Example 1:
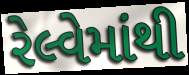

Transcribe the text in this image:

રેલ્વેમાંથી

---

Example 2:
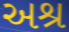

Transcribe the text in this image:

અશ્ર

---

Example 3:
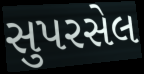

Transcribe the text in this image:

સુપરસેલ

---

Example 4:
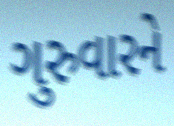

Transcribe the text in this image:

ગુરુવારને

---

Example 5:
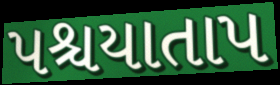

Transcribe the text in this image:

પશ્ચયાતાપ